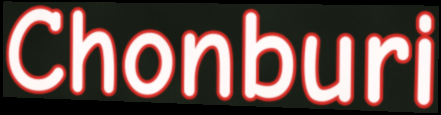
Chonburi